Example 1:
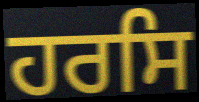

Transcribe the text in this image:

ਹਰਸਿ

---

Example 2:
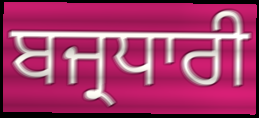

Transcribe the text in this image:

ਬਜ੍ਰਧਾਰੀ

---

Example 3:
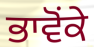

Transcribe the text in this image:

ਭਾਵੋਂਕੇ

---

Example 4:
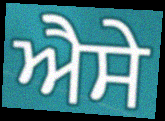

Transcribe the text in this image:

ਐੇਸੇ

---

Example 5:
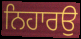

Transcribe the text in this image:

ਨਿਹਾਰਉ